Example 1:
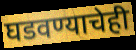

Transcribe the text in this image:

घडवण्याचेही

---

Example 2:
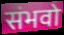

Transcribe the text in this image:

संभवो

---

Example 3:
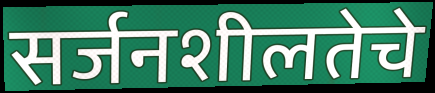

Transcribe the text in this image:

सर्जनशीलतेचे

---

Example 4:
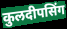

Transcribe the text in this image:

कुलदीपसिंग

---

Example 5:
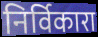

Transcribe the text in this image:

निर्विकारा